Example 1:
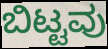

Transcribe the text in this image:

ಬಿಟ್ಟವು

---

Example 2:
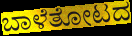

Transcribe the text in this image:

ಬಾಳೆತೋಟದ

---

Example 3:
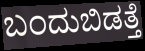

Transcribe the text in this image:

ಬಂದುಬಿಡತ್ತೆ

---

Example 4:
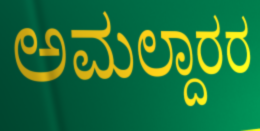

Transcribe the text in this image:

ಅಮಲ್ದಾರರ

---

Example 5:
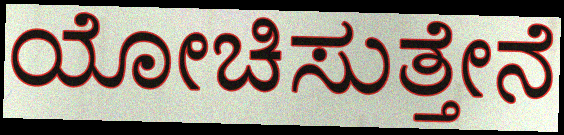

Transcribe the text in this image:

ಯೋಚಿಸುತ್ತೇನೆ